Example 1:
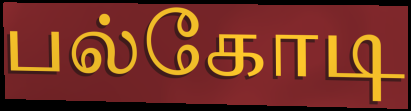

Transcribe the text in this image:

பல்கோடி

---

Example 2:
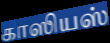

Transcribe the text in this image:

காஸியஸ்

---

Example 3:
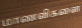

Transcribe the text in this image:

மாணவிகளை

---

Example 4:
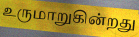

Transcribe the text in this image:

உருமாறுகின்றது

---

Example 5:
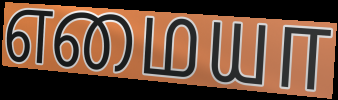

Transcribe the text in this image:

எமையா